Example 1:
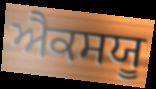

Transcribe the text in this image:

ਐਕਸਯੂ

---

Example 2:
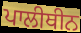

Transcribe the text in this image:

ਪਾਲੀਥੀਨ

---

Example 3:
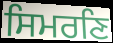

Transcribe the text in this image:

ਸਿਮਰਣਿ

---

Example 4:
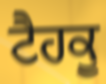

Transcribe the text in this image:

ਟੈਹਕੂ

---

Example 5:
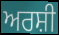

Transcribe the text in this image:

ਅਰਸ਼ੀ